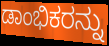
ಡಾಂಭಿಕರನ್ನು